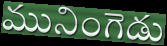
మునింగెడు